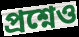
প্রশ্নেও